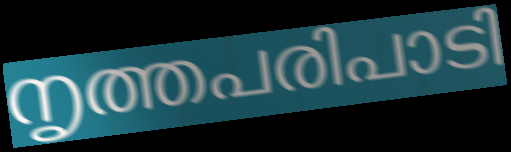
നൃത്തപരിപാടി